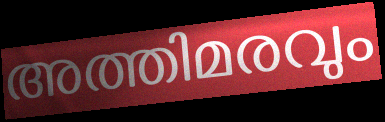
അത്തിമരവും